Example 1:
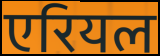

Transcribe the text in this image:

एरियल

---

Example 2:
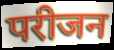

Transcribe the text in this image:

परीजन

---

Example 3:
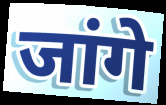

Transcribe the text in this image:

जांगे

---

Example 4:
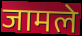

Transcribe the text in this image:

जामले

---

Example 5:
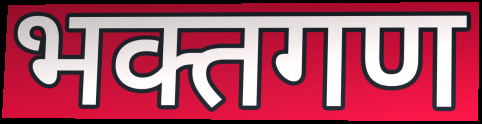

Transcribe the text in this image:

भक्तगण